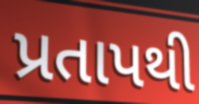
પ્રતાપથી